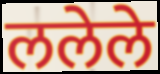
ललेले